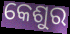
କେଶୁର